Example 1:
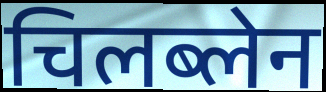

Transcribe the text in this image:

चिलब्लेन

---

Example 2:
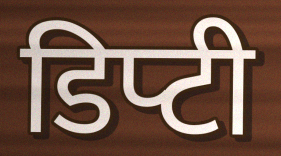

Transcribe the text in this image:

डिप्‍टी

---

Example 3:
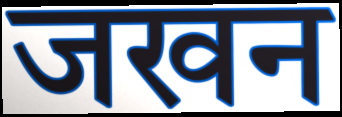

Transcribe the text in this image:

जखन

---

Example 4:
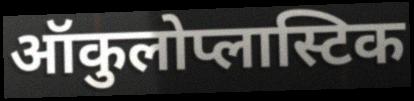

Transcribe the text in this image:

ऑकुलोप्लास्टिक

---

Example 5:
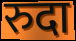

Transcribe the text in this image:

रुदा